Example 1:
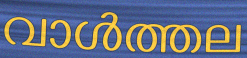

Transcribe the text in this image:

വാൾത്തല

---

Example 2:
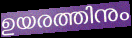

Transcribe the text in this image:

ഉയരത്തിനും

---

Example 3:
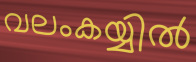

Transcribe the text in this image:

വലംകയ്യിൽ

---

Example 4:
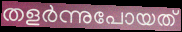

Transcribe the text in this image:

തളർന്നുപോയത്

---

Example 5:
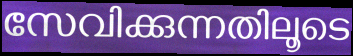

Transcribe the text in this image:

സേവിക്കുന്നതിലൂടെ